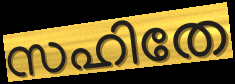
സഹിതേ